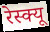
रेस्क्यू